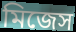
মিজেস